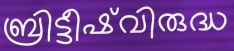
ബ്രിട്ടീഷ്‌വിരുദ്ധ